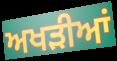
ਅਖੜੀਆਂ